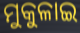
ମୁକୁଳାଇ